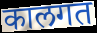
कालगत